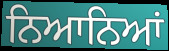
ਨਿਆਨਿਆਂ